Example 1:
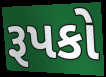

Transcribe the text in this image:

રૂપકો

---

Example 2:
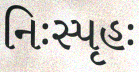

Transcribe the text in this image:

નિઃસ્પૃહઃ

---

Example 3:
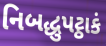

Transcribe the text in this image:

નિબદ્ધુપટ્ઠાકં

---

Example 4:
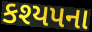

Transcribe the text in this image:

કશ્યપના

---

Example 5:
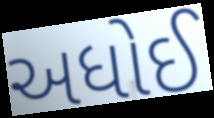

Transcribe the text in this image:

અધોઈ